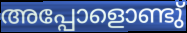
അപ്പോളൊണ്ടു്